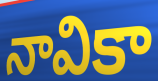
నావికా